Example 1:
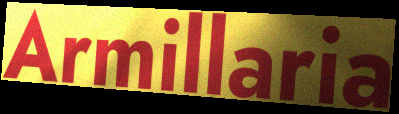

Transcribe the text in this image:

Armillaria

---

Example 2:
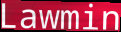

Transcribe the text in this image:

Lawmin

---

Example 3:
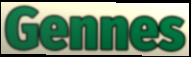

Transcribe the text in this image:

Gennes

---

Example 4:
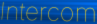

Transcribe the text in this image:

Intercom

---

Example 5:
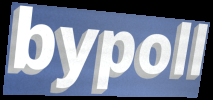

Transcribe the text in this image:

bypoll